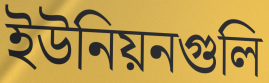
ইউনিয়নগুলি